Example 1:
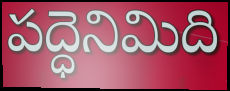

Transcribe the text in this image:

పద్ధెనిమిది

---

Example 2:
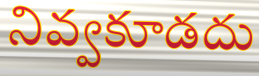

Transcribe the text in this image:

నివ్వకూడదు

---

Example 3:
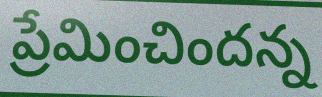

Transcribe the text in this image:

ప్రేమించిందన్న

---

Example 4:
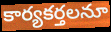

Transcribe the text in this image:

కార్యకర్తలనూ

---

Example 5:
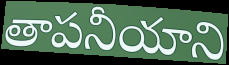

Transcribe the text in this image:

తాపనీయాని